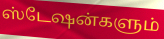
ஸ்டேஷன்களும்